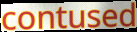
contused